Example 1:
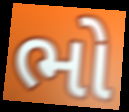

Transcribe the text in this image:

ભો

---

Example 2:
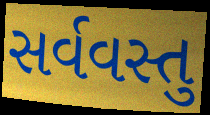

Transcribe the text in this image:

સર્વવસ્તુ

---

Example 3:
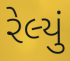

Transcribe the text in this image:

રેલ્યું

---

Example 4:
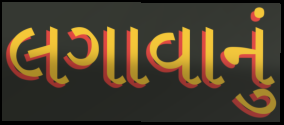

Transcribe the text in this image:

લગાવાનું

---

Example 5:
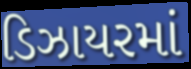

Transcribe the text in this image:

ડિઝાયરમાં